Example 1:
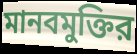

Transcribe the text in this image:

মানবমুক্তির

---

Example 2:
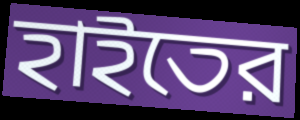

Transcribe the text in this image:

হাইতের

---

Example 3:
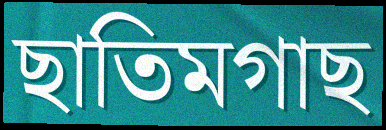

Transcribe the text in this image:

ছাতিমগাছ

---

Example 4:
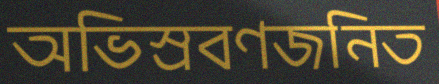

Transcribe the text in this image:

অভিস্রবণজনিত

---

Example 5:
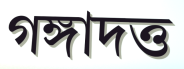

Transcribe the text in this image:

গঙ্গাদত্ত